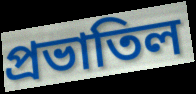
প্রভাতিল